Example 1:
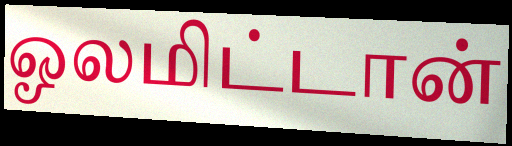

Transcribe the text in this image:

ஓலமிட்டான்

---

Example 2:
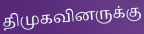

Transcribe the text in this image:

திமுகவினருக்கு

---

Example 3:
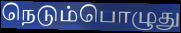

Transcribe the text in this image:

நெடும்பொழுது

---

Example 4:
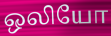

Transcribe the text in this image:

ஒலியோ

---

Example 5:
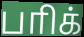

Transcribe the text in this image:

பரிக்